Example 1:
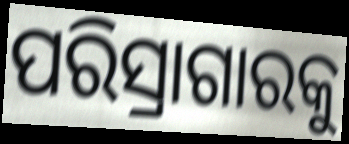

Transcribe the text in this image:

ପରିସ୍ରାଗାରକୁ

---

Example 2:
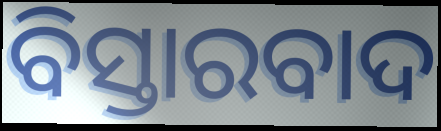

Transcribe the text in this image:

ବିସ୍ତାରବାଦ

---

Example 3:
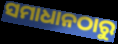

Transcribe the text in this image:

ସମାଧାନଠାରୁ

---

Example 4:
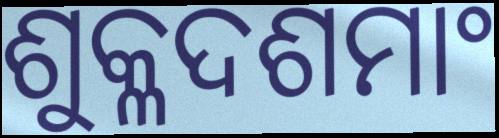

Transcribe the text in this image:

ଶୁକ୍ଳଦଶମାଂ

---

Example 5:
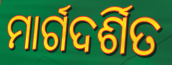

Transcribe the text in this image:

ମାର୍ଗଦର୍ଶିତ